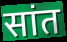
सांत